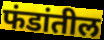
फंडांतील